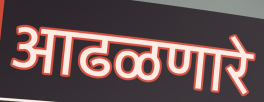
आढळणारे